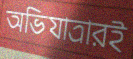
অভিযাত্রারই